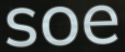
soe